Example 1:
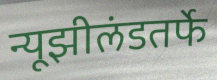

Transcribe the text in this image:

न्यूझीलंडतर्फे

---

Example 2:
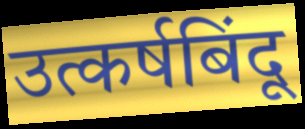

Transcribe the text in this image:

उत्कर्षबिंदू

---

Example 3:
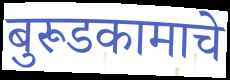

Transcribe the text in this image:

बुरूडकामाचे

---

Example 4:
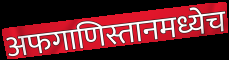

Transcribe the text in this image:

अफगाणिस्तानमध्येच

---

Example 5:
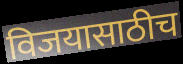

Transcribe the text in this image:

विजयासाठीच